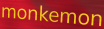
monkemon